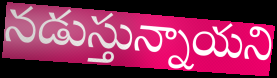
నడుస్తున్నాయని